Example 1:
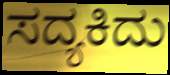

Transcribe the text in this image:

ಸದ್ಯಕಿದು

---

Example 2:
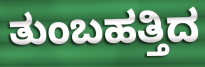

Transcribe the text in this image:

ತುಂಬಹತ್ತಿದ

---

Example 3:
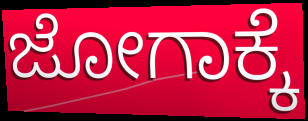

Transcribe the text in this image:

ಜೋಗಾಕ್ಕೆ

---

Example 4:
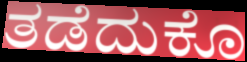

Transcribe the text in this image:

ತಡೆದುಕೊ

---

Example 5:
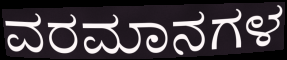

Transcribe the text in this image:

ವರಮಾನಗಳ